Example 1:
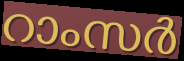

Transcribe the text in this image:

റാംസർ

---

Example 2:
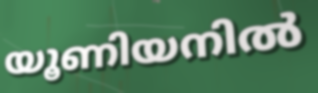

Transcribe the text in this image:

യൂണിയനിൽ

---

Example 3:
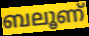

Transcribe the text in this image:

ബലൂണ്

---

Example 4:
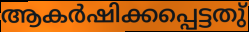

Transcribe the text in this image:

ആകർഷിക്കപ്പെട്ടതു്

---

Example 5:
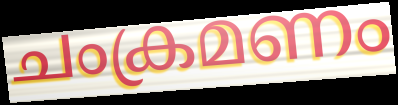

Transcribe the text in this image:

ചംക്രമണം